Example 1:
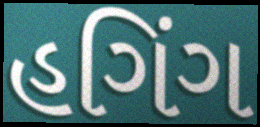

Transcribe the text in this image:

હગિંગ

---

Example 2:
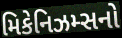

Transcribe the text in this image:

મિકેનિઝમ્સનો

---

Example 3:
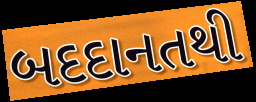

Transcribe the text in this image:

બદદાનતથી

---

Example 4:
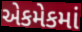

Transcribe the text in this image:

એકમેકમાં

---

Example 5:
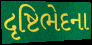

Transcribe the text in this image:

દૃષ્ટિભેદના